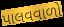
પાલવવાળો